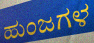
ಹುಂಜಗಳ